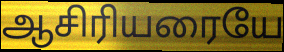
ஆசிரியரையே